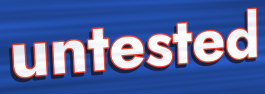
untested